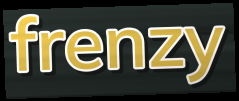
frenzy